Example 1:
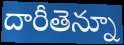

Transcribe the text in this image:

దారీతెన్నూ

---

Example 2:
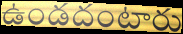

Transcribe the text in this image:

ఉండదంటారు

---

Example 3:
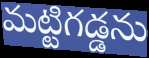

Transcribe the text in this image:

మట్టిగడ్డను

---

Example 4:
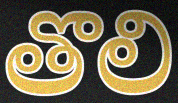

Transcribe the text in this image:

తొలి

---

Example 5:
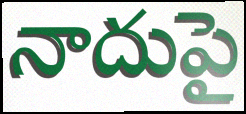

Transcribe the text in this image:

నాదుపై